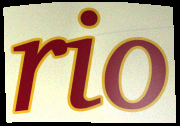
rio